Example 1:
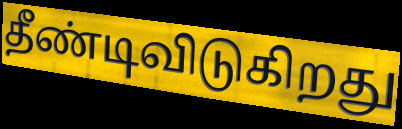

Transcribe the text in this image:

தீண்டிவிடுகிறது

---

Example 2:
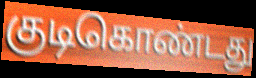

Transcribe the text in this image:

குடிகொண்டது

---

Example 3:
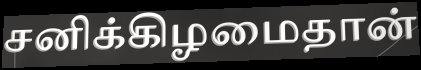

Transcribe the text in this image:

சனிக்கிழமைதான்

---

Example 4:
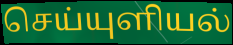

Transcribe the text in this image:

செய்யுளியல்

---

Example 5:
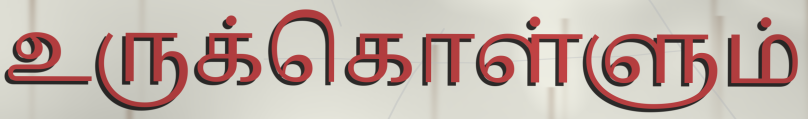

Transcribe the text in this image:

உருக்கொள்ளும்